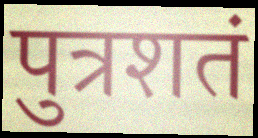
पुत्रशतं